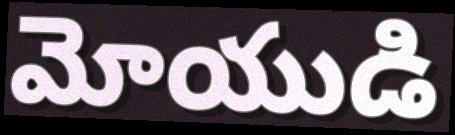
మోయుడి